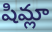
షిమ్లా